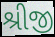
શ્રીજી